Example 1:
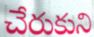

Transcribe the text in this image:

చేరుకుని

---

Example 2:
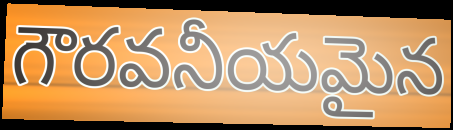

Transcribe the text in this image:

గౌరవనీయమైన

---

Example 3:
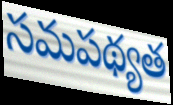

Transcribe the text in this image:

సమపథ్యత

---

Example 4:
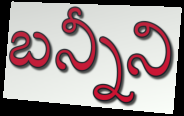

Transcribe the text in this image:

బన్నీని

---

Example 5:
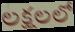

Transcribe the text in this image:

లక్షలలో